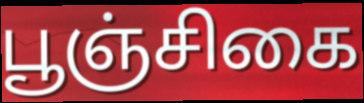
பூஞ்சிகை